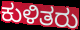
ಕುಳಿತರು